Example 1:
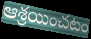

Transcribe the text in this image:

ఆశ్రయించటం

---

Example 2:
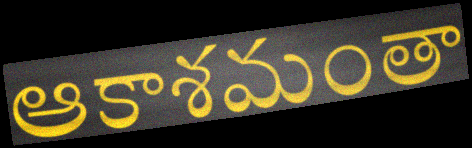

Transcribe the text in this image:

ఆకాశమంతా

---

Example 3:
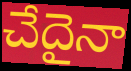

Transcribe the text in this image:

చేదైనా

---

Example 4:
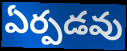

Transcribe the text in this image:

ఏర్పడవు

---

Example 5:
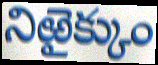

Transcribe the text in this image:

నిఱైక్కుం